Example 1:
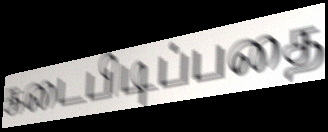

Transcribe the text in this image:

கடைபிடிப்பதை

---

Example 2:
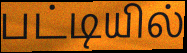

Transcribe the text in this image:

பட்டியில்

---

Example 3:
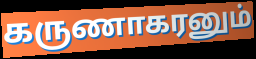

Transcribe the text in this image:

கருணாகரனும்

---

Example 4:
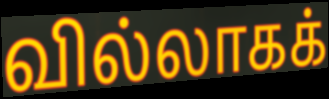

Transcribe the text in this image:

வில்லாகக்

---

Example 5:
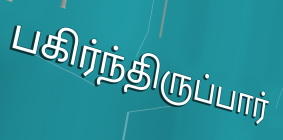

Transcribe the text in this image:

பகிர்ந்திருப்பார்